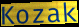
Kozak